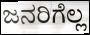
ಜನರಿಗೆಲ್ಲ